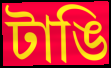
টাঙি